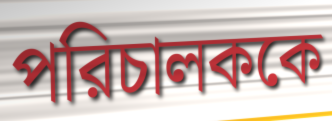
পরিচালককে